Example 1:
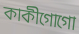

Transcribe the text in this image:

কাকীগোগো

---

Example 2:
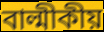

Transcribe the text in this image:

বাল্মীকীয়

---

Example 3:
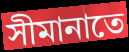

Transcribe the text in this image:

সীমানাতে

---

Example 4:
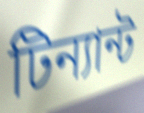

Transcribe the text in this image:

টিন্যান্ট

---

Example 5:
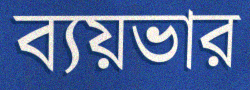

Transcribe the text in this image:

ব্যয়ভার